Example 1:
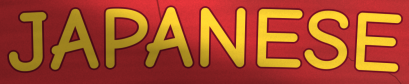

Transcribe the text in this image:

JAPANESE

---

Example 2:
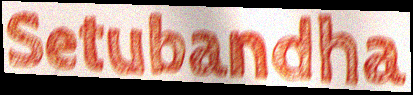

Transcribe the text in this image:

Setubandha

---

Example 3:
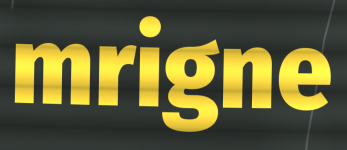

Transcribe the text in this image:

mrigne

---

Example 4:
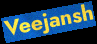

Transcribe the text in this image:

Veejansh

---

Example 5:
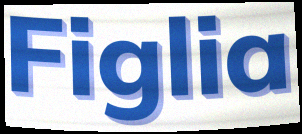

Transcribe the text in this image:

Figlia